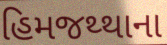
હિમજથ્થાના